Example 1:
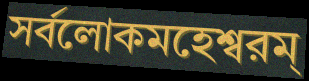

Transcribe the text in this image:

সর্বলোকমহেশ্বরম্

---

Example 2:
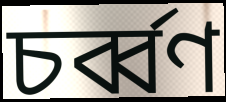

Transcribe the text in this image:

চর্ব্বণ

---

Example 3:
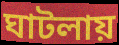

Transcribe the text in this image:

ঘাটলায়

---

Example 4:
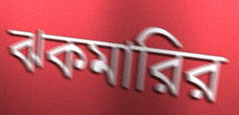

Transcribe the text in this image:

ঝকমারির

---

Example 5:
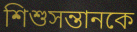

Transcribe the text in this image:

শিশুসন্তানকে